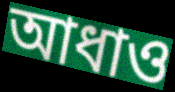
আধাও